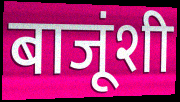
बाजूंशी